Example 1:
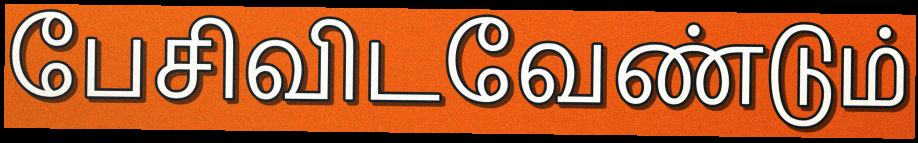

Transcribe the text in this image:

பேசிவிடவேண்டும்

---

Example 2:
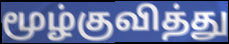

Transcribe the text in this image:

மூழ்குவித்து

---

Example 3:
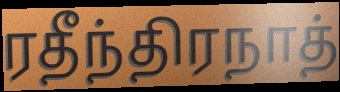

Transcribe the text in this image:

ரதீந்திரநாத்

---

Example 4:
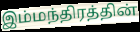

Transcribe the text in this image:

இம்மந்திரத்தின்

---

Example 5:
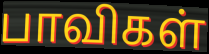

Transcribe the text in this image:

பாவிகள்